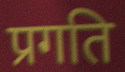
प्रगति